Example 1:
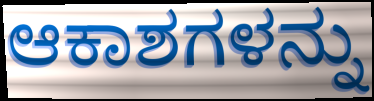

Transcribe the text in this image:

ಆಕಾಶಗಳನ್ನು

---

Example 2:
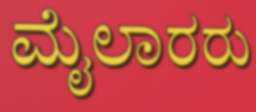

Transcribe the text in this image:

ಮೈಲಾರರು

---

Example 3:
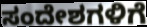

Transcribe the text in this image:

ಸಂದೇಶಗಳಿಗೆ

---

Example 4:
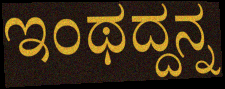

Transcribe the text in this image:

ಇಂಥದ್ದನ್ನ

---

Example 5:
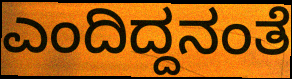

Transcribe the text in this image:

ಎಂದಿದ್ದನಂತೆ